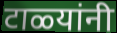
टाळ्यांनी